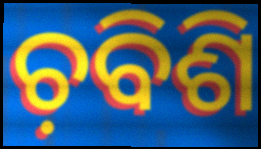
ଚ଼ବିଶି